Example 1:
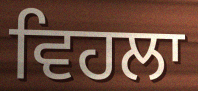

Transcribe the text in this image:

ਵਿਹਲਾ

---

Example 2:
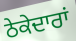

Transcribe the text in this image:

ਠੇਕੇਦਾਰਾਂ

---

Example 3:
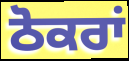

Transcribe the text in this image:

ਠੋਕਰਾਂ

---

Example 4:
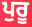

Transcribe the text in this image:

ਪੁਰੂ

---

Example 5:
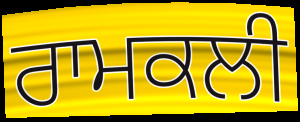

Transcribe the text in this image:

ਰਾਮਕਲੀ